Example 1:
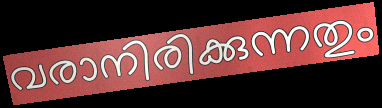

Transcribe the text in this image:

വരാനിരിക്കുന്നതും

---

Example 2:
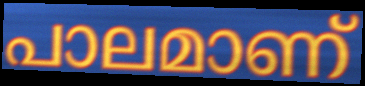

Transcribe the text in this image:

പാലമാണ്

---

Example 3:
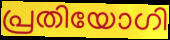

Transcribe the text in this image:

പ്രതിയോഗി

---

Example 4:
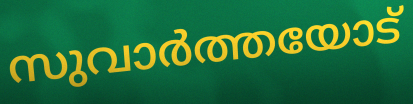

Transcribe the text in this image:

സുവാർത്തയോട്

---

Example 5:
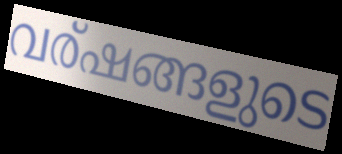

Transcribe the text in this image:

വര്ഷങ്ങളുടെ